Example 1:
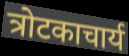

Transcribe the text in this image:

त्रोटकाचार्य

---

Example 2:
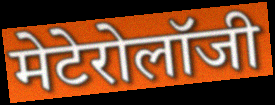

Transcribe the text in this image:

मेटेरोलॉजी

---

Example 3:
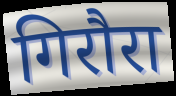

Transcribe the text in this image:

गिरौरा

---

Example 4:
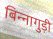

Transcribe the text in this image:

बिन्नागुड़ी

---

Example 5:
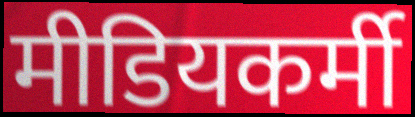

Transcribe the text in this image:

मीडियकर्मी